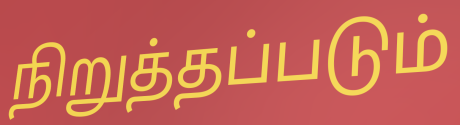
நிறுத்தப்படும்